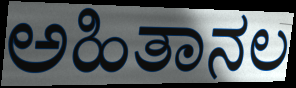
ಅಹಿತಾನಲ